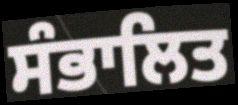
ਸੰਭਾਲਿਤ